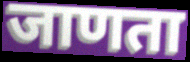
जाणता